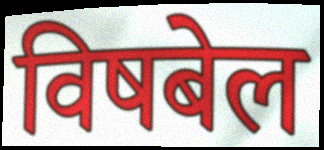
विषबेल